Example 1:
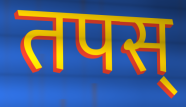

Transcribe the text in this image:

तपस्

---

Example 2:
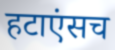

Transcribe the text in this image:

हटाएंसच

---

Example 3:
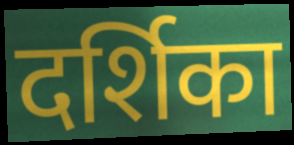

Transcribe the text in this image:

दर्शिका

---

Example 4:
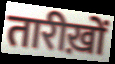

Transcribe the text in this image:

तारीख़ों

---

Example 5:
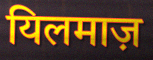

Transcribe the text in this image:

यिलमाज़